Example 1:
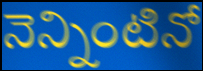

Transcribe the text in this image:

నెన్నింటినో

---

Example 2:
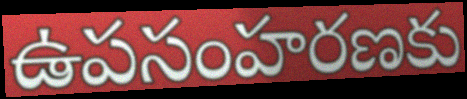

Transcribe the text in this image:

ఉపసంహరణకు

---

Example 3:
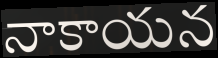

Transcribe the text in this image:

నాకాయన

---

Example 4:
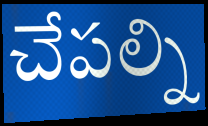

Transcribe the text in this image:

చేపల్ని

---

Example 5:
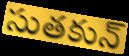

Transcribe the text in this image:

సుతకున్